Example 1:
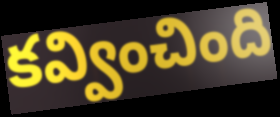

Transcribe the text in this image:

కవ్వించింది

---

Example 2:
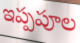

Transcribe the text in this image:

ఇప్పపూల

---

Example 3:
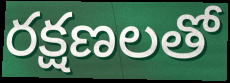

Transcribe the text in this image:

రక్షణలతో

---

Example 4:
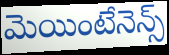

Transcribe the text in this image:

మెయింటేనెన్స్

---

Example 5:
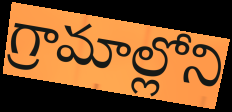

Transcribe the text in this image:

గ్రామాల్లోని